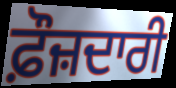
ਫ਼ੌਜ਼ਦਾਰੀ